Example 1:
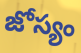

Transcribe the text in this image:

జోస్యం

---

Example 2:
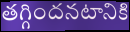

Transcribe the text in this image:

తగ్గిందనటానికి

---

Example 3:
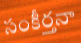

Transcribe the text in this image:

సంకీర్తనా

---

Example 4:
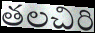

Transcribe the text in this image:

తలచిరి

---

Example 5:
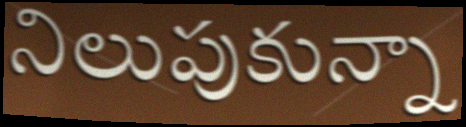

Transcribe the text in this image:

నిలుపుకున్నా